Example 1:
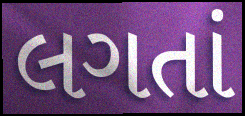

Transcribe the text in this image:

લગતાં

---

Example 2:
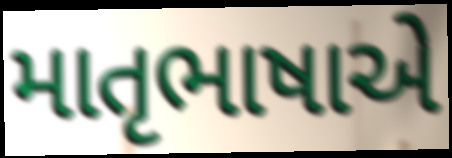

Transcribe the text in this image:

માતૃભાષાએ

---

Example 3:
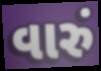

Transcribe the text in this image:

વારું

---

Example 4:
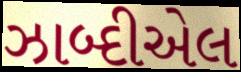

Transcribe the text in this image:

ઝાબ્દીએલ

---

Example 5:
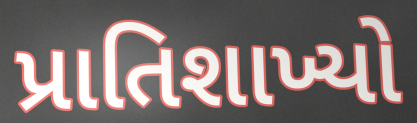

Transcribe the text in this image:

પ્રાતિશાખ્યો